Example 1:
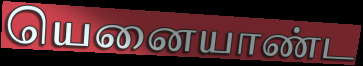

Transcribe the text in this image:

யெனையாண்ட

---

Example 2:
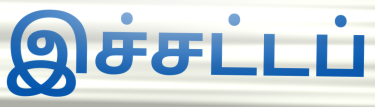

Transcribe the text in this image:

இச்சட்டப்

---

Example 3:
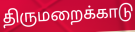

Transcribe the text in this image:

திருமறைக்காடு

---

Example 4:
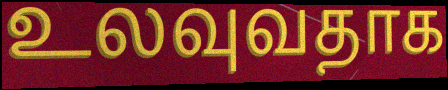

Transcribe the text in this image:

உலவுவதாக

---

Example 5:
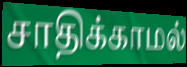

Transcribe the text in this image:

சாதிக்காமல்